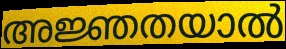
അജ്ഞതയാൽ